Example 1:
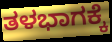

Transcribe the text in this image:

ತಳಭಾಗಕ್ಕೆ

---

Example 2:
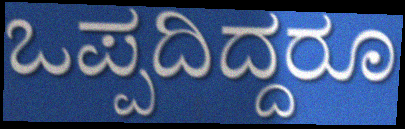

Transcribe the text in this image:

ಒಪ್ಪದಿದ್ದರೂ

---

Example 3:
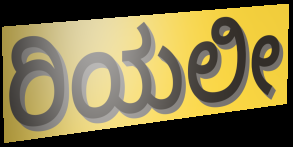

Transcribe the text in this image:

ರಿಯಲೀ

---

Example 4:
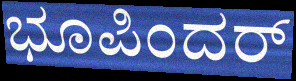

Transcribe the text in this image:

ಭೂಪಿಂದರ್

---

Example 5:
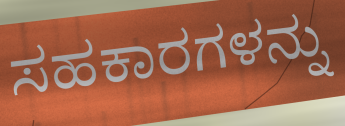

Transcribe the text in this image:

ಸಹಕಾರಗಳನ್ನು